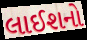
લાઈશનો